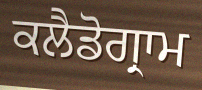
ਕਲੈਡੋਗ੍ਰਾਮ